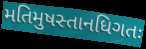
મતિમુષસ્તાનધિગતઃ